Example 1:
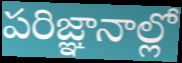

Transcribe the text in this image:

పరిజ్ఞానాల్లో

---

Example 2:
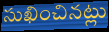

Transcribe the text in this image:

సుఖించినట్లు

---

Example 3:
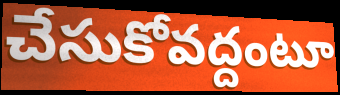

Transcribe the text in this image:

చేసుకోవద్దంటూ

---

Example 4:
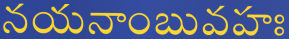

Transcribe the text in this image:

నయనాంబువహః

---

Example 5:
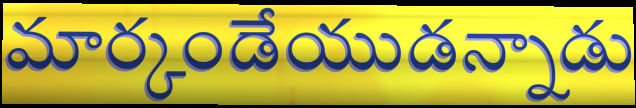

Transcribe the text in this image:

మార్కండేయుడన్నాడు